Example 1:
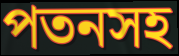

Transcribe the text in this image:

পতনসহ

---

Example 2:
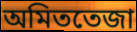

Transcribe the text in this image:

অমিততেজা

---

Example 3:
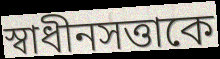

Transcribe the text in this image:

স্বাধীনসত্তাকে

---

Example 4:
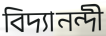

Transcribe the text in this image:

বিদ্যানন্দী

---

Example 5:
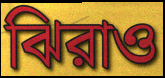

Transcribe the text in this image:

ঝিরাও